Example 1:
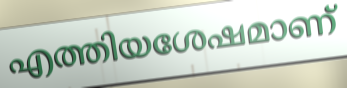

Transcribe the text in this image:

എത്തിയശേഷമാണ്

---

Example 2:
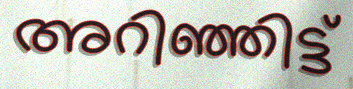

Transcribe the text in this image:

അറിഞ്ഞിട്ട്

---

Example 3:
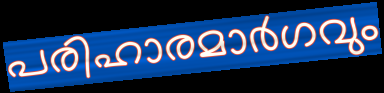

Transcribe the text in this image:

പരിഹാരമാർഗവും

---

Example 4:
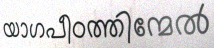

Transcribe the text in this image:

യാഗപീഠത്തിന്മേൽ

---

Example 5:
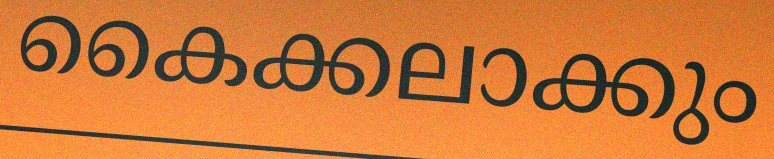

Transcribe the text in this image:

കൈക്കലാക്കും